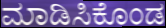
ಮಾಡಿಸಿಕೊಂಡ